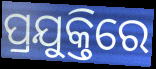
ପ୍ରଯୁକ୍ତିରେ